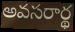
అవసరార్థ